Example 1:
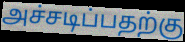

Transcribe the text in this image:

அச்சடிப்பதற்கு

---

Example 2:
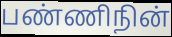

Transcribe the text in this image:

பண்ணிநின்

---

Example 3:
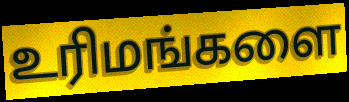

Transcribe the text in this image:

உரிமங்களை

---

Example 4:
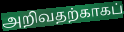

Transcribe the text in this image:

அறிவதற்காகப்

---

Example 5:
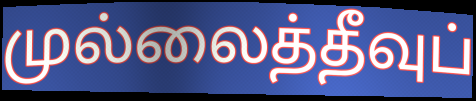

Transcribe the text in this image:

முல்லைத்தீவுப்